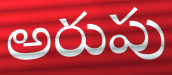
అరుపు